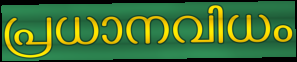
പ്രധാനവിധം